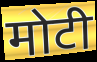
मोटी